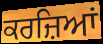
ਕਰਜ਼ਿਆਂ